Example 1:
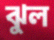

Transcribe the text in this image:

ঝুল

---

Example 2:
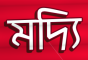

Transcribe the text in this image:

মদ্যি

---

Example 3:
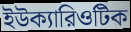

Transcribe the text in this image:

ইউক্যারিওটিক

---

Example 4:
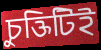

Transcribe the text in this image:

চুক্তিটিই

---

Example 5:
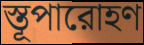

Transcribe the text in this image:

স্তূপারোহণ